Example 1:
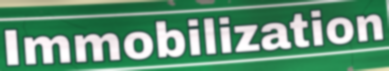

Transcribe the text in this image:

Immobilization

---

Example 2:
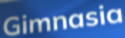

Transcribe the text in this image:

Gimnasia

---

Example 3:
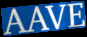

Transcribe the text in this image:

AAVE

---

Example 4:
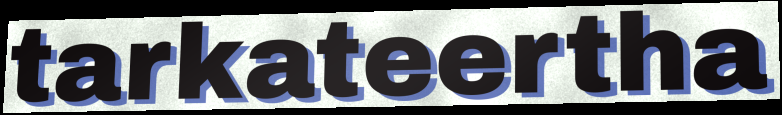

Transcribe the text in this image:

tarkateertha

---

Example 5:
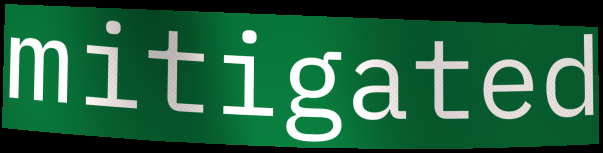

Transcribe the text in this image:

mitigated